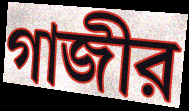
গাজীর